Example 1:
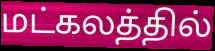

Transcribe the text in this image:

மட்கலத்தில்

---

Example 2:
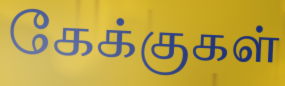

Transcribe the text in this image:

கேக்குகள்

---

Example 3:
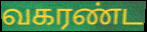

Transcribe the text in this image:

வகரண்ட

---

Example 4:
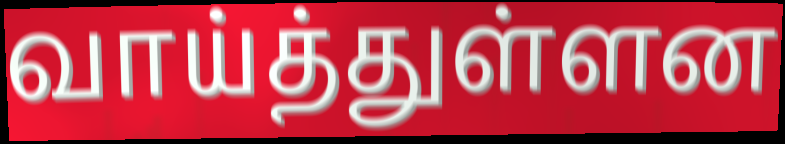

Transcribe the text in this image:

வாய்த்துள்ளன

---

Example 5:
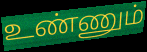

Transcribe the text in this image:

உண்ணும்